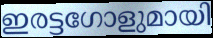
ഇരട്ടഗോളുമായി